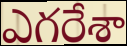
ఎగరేశా